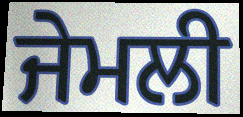
ਜੇਮਲੀ